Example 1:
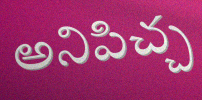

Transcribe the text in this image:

అనిపిచ్చ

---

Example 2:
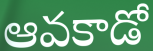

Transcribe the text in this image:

ఆవకాడో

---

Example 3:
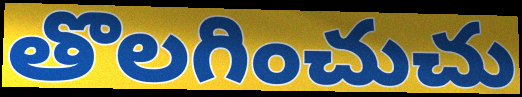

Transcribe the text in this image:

తొలగించుచు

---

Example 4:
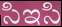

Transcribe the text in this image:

సిఇసి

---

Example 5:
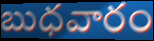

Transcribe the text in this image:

బుధవారం